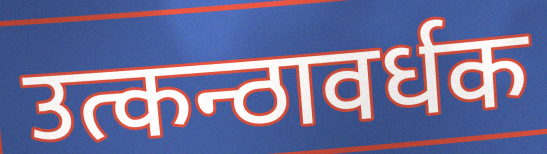
उत्कन्ठावर्धक